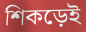
শিকড়েই